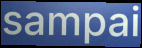
sampai